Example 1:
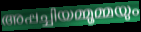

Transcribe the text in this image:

അപ്പച്ചിയമ്മൂമ്മയും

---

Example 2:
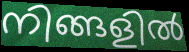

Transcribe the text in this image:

നിങ്ങളിൽ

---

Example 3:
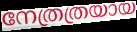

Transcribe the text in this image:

നേത്രത്രയായ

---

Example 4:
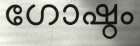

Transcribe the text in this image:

ഗോഷ്ഠം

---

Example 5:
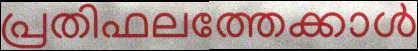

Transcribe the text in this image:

പ്രതിഫലത്തേക്കാൾ